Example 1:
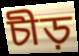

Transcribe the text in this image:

চীড়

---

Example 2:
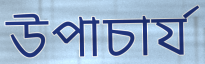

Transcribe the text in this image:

উপাচার্য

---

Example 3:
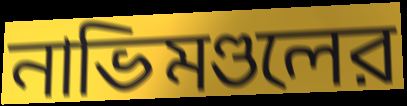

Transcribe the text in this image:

নাভিমণ্ডলের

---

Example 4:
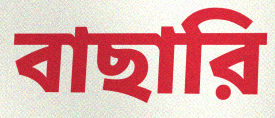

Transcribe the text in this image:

বাছারি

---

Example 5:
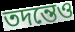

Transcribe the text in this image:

তদন্তেও